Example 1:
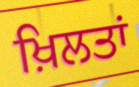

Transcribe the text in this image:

ਖ਼ਿਲਤਾਂ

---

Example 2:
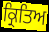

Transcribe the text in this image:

ਕ੍ਰਿਤਿਅ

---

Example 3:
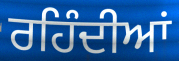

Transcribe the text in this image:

ਰਹਿੰਦੀਆਂ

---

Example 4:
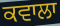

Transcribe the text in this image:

ਕਵਾਲਾ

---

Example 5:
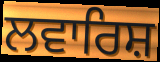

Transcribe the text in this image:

ਲਵਾਰਿਸ਼